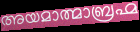
അയമാത്മാബ്രഹ്മ